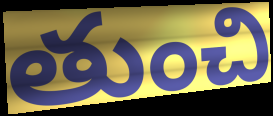
తుంచి